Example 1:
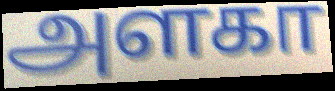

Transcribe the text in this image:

அளகா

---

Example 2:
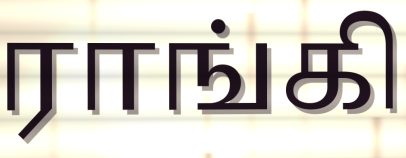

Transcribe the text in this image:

ராங்கி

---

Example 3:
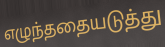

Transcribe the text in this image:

எழுந்ததையடுத்து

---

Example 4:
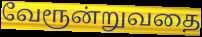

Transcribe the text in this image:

வேரூன்றுவதை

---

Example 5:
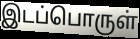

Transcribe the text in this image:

இடப்பொருள்